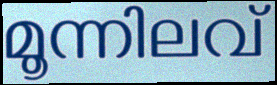
മൂന്നിലവ്